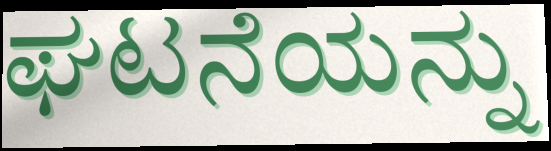
ಘಟನೆಯನ್ನು